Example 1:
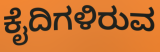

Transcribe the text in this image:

ಕೈದಿಗಳಿರುವ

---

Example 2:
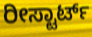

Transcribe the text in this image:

ರೀಸ್ಟಾರ್ಟ್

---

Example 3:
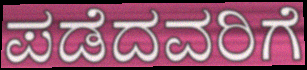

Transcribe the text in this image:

ಪಡೆದವರಿಗೆ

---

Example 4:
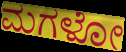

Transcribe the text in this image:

ಮಗಳೋ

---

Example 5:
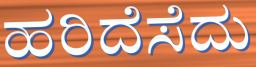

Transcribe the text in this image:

ಹರಿದೆಸೆದು